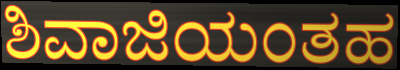
ಶಿವಾಜಿಯಂತಹ